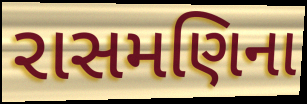
રાસમણિના